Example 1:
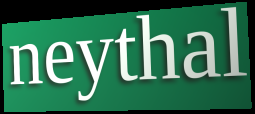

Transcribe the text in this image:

neythal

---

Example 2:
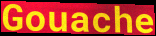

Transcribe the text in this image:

Gouache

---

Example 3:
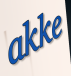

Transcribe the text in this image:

akke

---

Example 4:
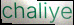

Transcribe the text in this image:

chaliye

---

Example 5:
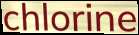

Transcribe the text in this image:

chlorine